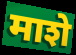
माशे